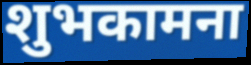
शुभकामना